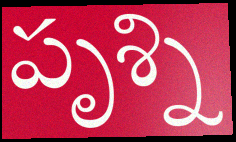
పృశ్ని